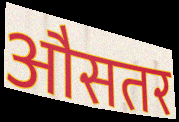
औसतर